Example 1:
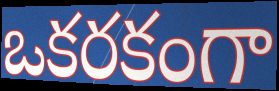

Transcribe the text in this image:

ఒకరకంగా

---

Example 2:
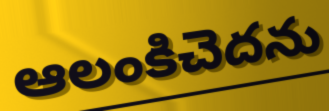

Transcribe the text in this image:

ఆలంకిచెదను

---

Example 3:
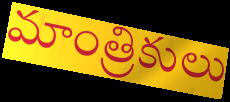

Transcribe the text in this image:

మాంత్రికులు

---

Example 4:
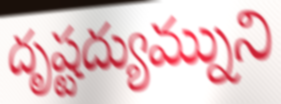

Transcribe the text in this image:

దృష్టద్యుమ్నుని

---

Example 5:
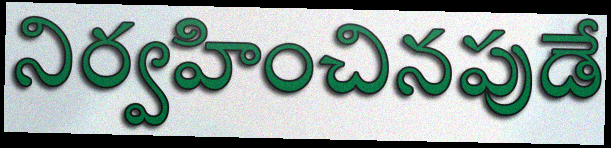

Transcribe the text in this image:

నిర్వహించినపుడే